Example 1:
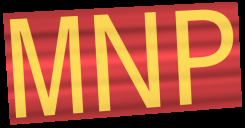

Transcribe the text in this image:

MNP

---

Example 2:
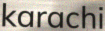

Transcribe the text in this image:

karachi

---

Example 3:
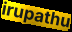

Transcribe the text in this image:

irupathu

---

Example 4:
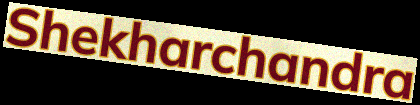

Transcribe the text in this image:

Shekharchandra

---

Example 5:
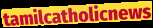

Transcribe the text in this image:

tamilcatholicnews